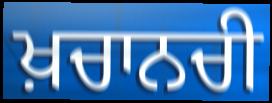
ਖ਼ਚਾਨਚੀ